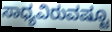
ಸಾಧ್ಯವಿರುವಷ್ಟೂ